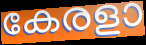
കേരളാ